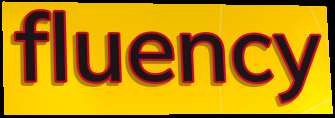
fluency